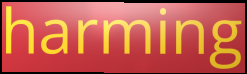
harming